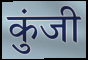
कुंजी